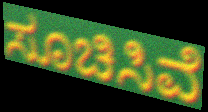
ಸೂಚಿಸಿವೆ